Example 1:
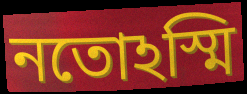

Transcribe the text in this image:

নতোঽস্মি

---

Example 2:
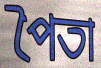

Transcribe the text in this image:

পৈতা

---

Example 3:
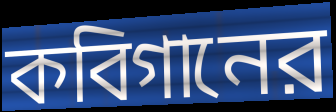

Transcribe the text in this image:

কবিগানের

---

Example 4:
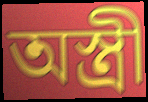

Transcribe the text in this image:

অস্ত্রী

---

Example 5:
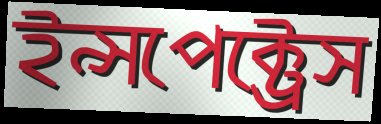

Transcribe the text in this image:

ইন্সপেক্ট্রেস